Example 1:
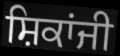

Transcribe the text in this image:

ਸ਼ਿਕਾਂਜੀ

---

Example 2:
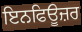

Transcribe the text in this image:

ਇਨਫਿਊਜ਼ਰ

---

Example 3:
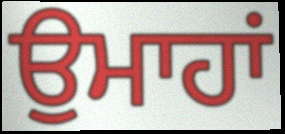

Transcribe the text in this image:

ਉਮਾਹਾਂ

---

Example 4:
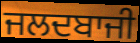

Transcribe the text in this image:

ਜਲਦਬਾਜੀ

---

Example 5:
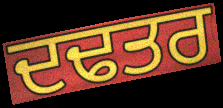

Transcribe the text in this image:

ਦਢਤਰ